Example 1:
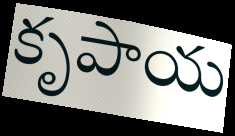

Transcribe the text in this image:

కృపాయ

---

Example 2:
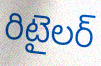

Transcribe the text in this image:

రిటైలర్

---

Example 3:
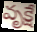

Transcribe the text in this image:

వృక్షే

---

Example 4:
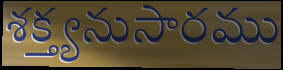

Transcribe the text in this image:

శక్త్యనుసారము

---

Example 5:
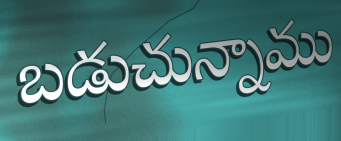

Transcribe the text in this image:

బడుచున్నాము